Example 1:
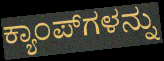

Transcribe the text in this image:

ಕ್ಯಾಂಪ್‍ಗಳನ್ನು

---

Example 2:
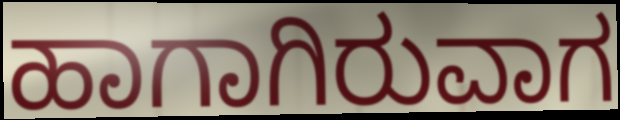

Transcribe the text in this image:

ಹಾಗಾಗಿರುವಾಗ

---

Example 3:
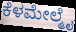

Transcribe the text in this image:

ಕೆಳಮೇಲ್ಮೈ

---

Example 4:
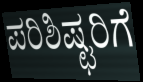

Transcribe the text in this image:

ಪರಿಶಿಷ್ಟರಿಗೆ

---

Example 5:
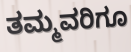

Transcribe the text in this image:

ತಮ್ಮವರಿಗೂ